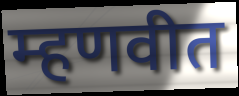
म्हणवीत